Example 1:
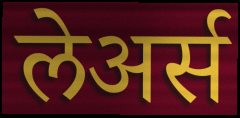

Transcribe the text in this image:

लेअर्स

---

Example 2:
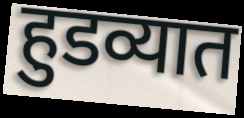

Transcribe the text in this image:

हुडव्यात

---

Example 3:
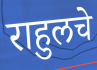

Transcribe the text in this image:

राहुलचे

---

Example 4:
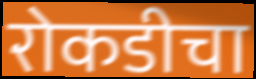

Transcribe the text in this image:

रोकडीचा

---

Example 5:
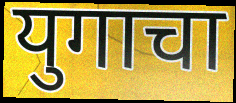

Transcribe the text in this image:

युगाचा